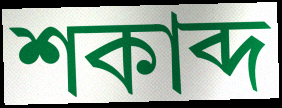
শকাব্দ